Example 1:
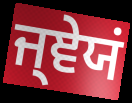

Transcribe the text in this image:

ਜ੍ਞੇਯਂ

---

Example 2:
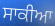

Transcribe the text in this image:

ਸਾਕੀਆ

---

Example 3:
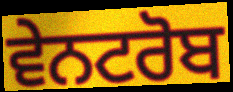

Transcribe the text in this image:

ਵੇਨਟਰੋਬ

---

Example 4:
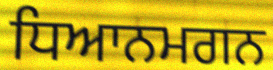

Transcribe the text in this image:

ਧਿਆਨਮਗਨ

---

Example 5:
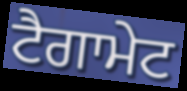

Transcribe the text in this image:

ਟੈਗਾਮੇਟ